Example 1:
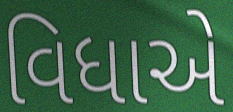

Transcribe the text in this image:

વિધાએ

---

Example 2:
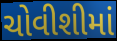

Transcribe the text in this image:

ચોવીશીમાં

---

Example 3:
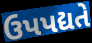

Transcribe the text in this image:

ઉપપદ્યતે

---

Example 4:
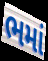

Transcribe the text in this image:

ભમાં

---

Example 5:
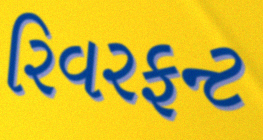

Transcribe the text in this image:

રિવરફન્ટ